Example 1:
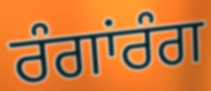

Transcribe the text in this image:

ਰੰਗਾਂਰੰਗ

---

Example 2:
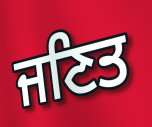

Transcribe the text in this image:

ਜਣਿਤ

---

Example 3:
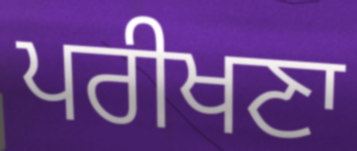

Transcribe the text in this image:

ਪਰੀਖਣਾ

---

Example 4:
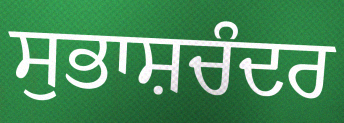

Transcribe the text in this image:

ਸੁਭਾਸ਼ਚੰਦਰ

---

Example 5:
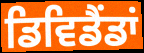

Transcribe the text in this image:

ਡਿਵਿਡੈਂਡਾਂ